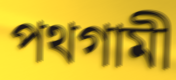
পথগামী